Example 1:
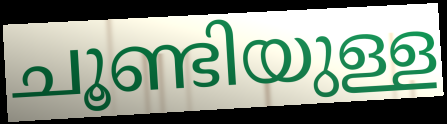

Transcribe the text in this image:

ചൂണ്ടിയുള്ള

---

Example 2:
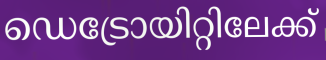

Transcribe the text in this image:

ഡെട്രോയിറ്റിലേക്ക്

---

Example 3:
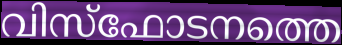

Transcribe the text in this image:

വിസ്ഫോടനത്തെ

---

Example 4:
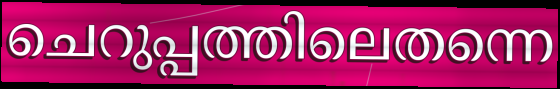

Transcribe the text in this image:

ചെറുപ്പത്തിലെതന്നെ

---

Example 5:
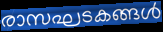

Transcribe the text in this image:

രാസഘടകങ്ങൾ